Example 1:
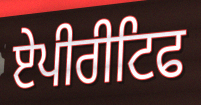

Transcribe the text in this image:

ਏਪੀਰੀਟਿਫ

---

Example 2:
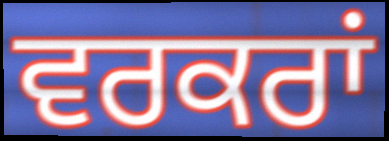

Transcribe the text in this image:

ਵਰਕਰਾਂ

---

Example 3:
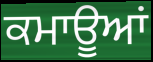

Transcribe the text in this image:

ਕਮਾਊਆਂ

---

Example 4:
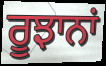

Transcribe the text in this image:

ਰੂਝਾਨਾਂ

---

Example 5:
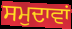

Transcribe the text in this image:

ਸਮੁਦਾਵਾਂ